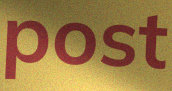
post